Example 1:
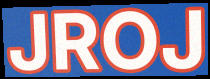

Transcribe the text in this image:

JROJ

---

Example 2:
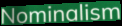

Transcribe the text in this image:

Nominalism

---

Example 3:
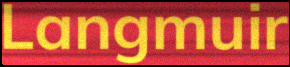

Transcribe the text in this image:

Langmuir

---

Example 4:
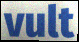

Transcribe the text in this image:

vult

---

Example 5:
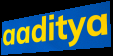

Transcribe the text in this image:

aaditya